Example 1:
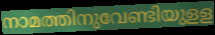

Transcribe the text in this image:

നാമത്തിനുവേണ്ടിയുളള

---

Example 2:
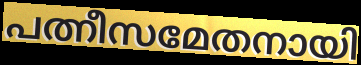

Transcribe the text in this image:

പത്നീസമേതനായി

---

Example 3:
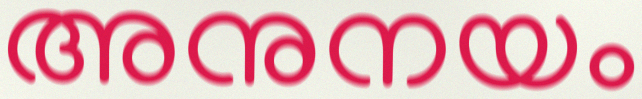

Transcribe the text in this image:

അനുനയം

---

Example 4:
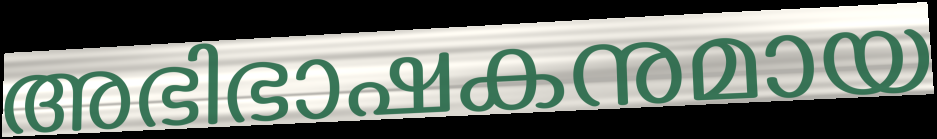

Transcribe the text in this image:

അഭിഭാഷകനുമായ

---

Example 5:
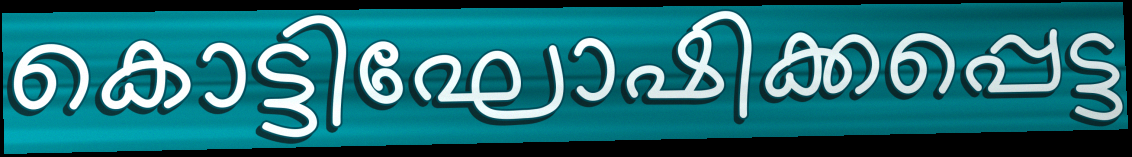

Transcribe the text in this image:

കൊട്ടിഘോഷിക്കപ്പെട്ട